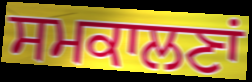
ਸਮਕਾਲਣਾਂ